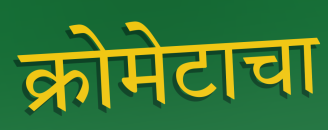
क्रोमेटाचा